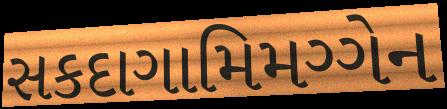
સકદાગામિમગ્ગેન